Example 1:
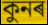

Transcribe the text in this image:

কুনৰ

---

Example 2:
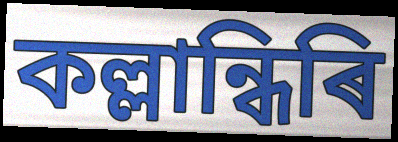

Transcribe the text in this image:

কল্লান্ধিৰি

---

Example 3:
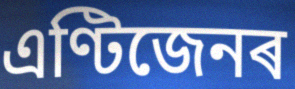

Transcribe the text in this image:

এণ্টিজেনৰ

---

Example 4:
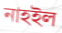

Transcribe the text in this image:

নাহইল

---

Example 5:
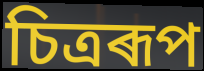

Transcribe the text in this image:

চিত্ৰৰূপ